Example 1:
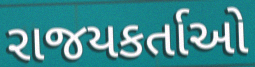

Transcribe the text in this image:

રાજયકર્તાઓ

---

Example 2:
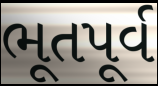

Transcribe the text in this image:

ભૂતપૂર્વ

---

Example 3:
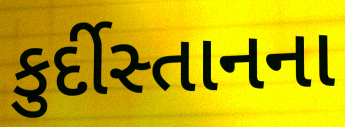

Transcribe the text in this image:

કુર્દીસ્તાનના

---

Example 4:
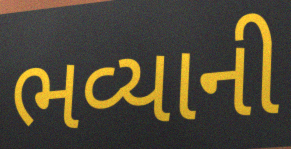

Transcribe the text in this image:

ભવ્યાની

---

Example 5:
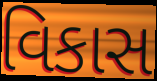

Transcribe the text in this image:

વિકાસ